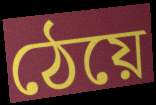
ঠেয়ে